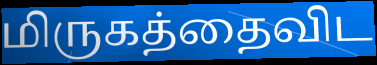
மிருகத்தைவிட